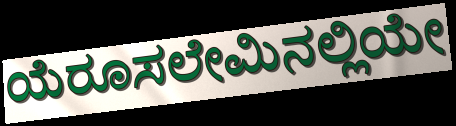
ಯೆರೂಸಲೇಮಿನಲ್ಲಿಯೇ